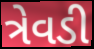
ત્રેવડી